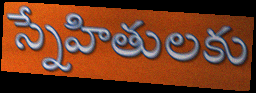
స్నేహితులకు